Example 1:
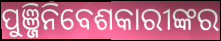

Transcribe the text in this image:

ପୁଞ୍ଜିନିବେଶକାରୀଙ୍କର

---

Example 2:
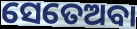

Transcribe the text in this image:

ସେତେଅବା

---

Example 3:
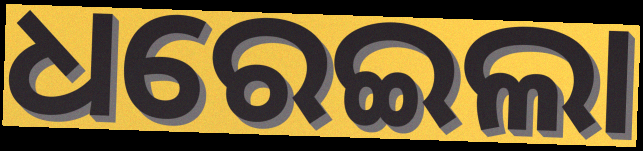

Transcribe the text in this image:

ଧରେଇଲା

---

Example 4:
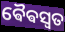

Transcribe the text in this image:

ଵୈଵସ୍ୱତ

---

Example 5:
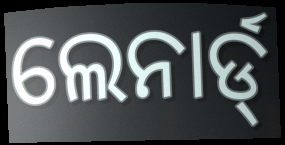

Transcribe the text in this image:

ଲେନାର୍ଡ୍